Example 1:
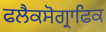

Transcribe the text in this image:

ਫਲੈਕਸੋਗ੍ਰਾਫਿਕ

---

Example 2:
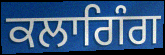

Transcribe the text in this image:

ਕਲਾਗਿੰਗ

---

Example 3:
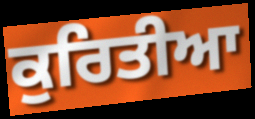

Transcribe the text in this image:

ਕੁਰਿਤੀਆ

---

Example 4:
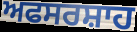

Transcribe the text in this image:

ਅਫਸਰਸ਼ਾਹ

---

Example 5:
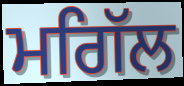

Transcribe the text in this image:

ਮਗਿੱਲ